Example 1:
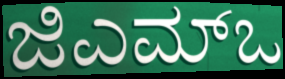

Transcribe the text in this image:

ಜಿಎಮ್ಒ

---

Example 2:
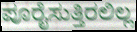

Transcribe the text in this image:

ಪೂರೈಸುತ್ತಿರಲಿಲ್ಲ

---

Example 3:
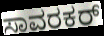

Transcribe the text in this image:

ಸಾವರಕರ್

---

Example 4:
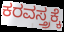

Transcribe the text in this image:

ಕರವಸ್ತ್ರಕ್ಕೆ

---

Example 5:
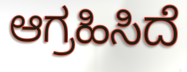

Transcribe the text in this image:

ಆಗ್ರಹಿಸಿದೆ